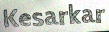
Kesarkar